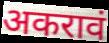
अकरावं